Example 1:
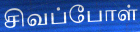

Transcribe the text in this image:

சிவப்போள்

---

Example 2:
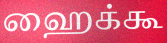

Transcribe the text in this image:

ஹைக்கூ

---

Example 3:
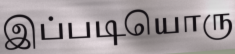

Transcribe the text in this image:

இப்படியொரு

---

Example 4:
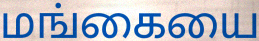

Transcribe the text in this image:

மங்கையை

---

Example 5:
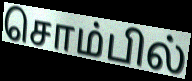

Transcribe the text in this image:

சொம்பில்